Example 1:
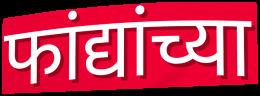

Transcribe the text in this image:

फांद्यांच्या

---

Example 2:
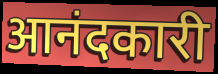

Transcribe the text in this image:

आनंदकारी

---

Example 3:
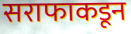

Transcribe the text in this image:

सराफाकडून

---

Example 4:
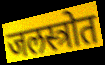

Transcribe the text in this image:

जलस्त्रोत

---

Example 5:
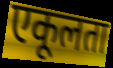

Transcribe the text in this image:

एकूलता